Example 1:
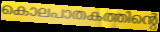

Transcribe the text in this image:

കൊലപാതകത്തിന്റെ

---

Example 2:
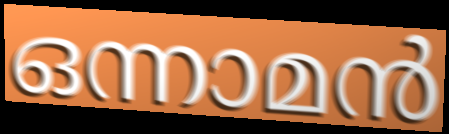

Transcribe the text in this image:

ഒന്നാമൻ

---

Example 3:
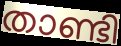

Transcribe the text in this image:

താണ്ടി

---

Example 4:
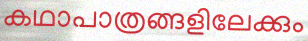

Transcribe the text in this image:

കഥാപാത്രങ്ങളിലേക്കും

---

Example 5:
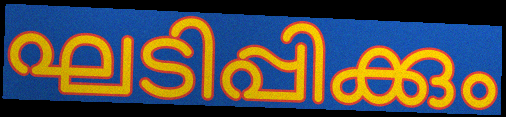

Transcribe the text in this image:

ഘടിപ്പിക്കും